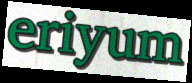
eriyum